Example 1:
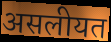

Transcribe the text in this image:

असलीयत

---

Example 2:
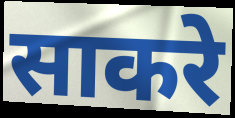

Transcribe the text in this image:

साकरे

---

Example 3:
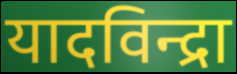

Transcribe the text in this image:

यादविन्द्रा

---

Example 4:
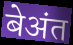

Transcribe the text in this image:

बेअंत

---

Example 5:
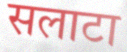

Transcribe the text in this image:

सलाटा